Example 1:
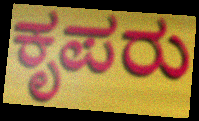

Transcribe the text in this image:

ಕೃಪರು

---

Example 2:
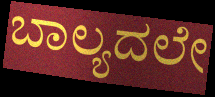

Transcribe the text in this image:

ಬಾಲ್ಯದಲೇ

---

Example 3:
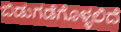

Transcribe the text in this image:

ಬಿಡುಗಡೆಗೊಳ್ಳಲಿದೆ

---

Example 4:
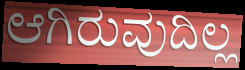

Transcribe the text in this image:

ಆಗಿರುವುದಿಲ್ಲ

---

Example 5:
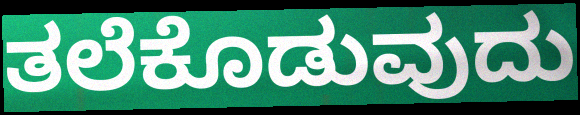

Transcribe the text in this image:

ತಲೆಕೊಡುವುದು